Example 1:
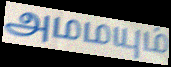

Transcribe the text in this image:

அமமயும்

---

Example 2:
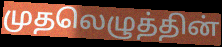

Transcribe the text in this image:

முதலெழுத்தின்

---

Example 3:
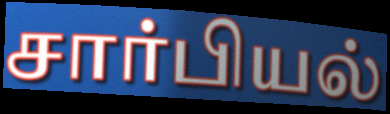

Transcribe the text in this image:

சார்பியல்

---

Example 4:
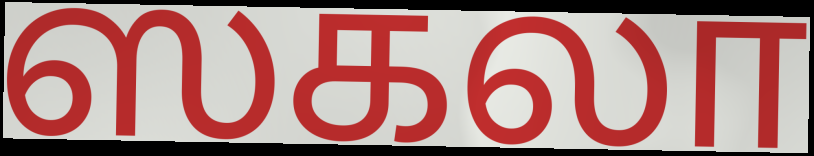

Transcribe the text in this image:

ஸகலா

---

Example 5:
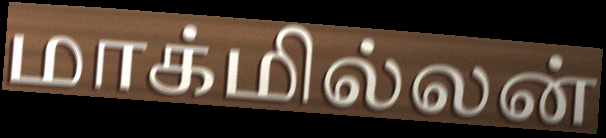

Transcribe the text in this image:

மாக்மில்லன்